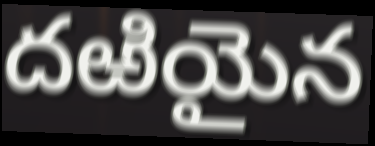
దఱియైన